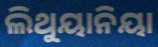
ଲିଥୁୟାନିୟା